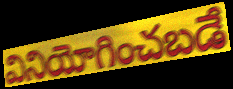
వినియోగించబడే